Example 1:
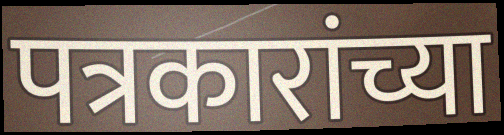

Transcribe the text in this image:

पत्रकारांच्या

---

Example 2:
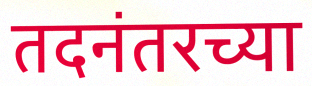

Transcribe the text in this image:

तदनंतरच्या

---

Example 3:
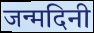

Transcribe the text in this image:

जन्मदिनी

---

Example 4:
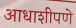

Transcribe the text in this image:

आधाशीपणे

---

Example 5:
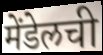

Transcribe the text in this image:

मेंडेलची